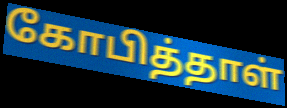
கோபித்தாள்